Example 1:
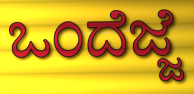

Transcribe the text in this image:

ಒಂದೆಜ್ಜೆ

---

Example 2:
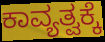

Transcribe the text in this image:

ಕಾವ್ಯತ್ವಕ್ಕೆ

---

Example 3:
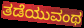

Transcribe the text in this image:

ತಡೆಯುವಂಥ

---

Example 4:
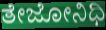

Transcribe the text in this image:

ತೇಜೋನಿಧಿ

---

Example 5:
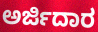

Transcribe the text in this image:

ಅರ್ಜಿದಾರ